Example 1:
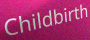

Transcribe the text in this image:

Childbirth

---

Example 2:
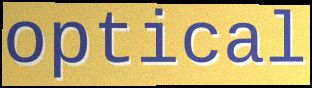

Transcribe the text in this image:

optical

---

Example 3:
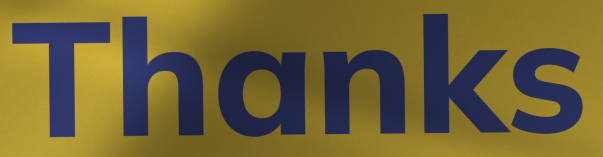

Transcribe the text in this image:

Thanks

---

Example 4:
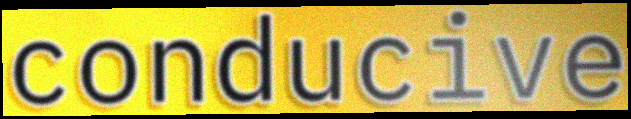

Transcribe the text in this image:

conducive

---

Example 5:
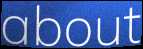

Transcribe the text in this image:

about